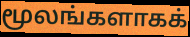
மூலங்களாகக்